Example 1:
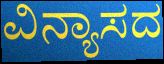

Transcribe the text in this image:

ವಿನ್ಯಾಸದ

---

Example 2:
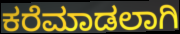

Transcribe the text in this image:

ಕರೆಮಾಡಲಾಗಿ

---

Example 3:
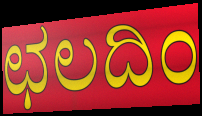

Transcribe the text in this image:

ಛಲದಿಂ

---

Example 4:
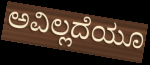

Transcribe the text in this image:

ಅವಿಲ್ಲದೆಯೂ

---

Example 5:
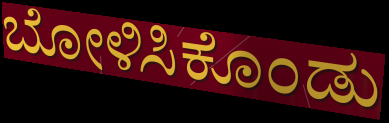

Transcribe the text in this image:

ಬೋಳಿಸಿಕೊಂಡು